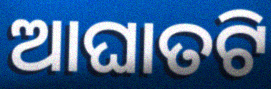
ଆଘାତଟି